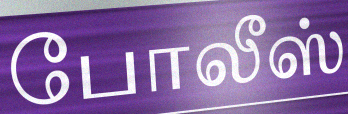
போலீஸ்